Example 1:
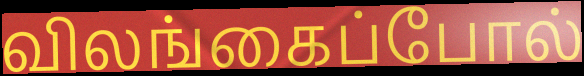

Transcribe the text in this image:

விலங்கைப்போல்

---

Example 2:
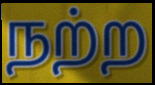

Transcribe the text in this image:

நற்ற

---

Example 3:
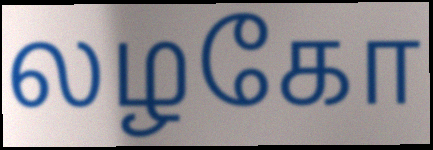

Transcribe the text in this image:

லழகோ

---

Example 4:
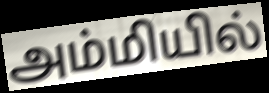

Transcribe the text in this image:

அம்மியில்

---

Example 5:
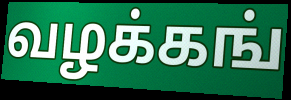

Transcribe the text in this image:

வழக்கங்